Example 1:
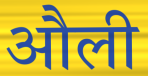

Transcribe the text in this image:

औली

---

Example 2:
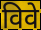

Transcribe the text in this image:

विवे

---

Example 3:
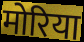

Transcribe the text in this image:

मोरिया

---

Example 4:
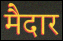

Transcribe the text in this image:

मैदार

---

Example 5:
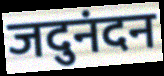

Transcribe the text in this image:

जदुनंदन